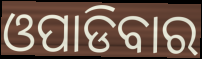
ଓପାଡିବାର